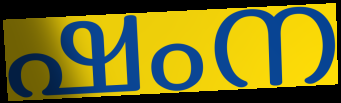
ഷംന